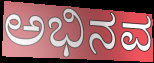
ಅಭಿನವ